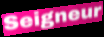
Seigneur